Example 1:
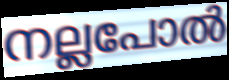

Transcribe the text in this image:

നല്ലപോൽ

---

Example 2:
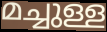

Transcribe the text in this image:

മച്ചുള്ള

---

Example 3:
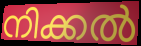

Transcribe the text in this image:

നിക്കൽ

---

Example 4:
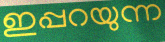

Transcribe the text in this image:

ഇപ്പറയുന്ന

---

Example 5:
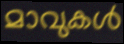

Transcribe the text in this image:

മാവുകൾ